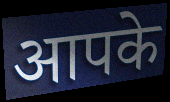
आपके